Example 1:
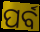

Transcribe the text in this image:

ପର୍ବ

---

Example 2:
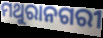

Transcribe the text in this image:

ମଥୁରାନଗରୀ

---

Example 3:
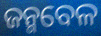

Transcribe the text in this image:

ଜନ୍ମବେଳ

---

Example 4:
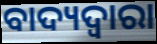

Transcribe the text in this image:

ବାଦ୍ୟଦ୍ୱାରା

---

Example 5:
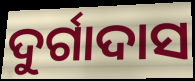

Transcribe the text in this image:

ଦୁର୍ଗାଦାସ